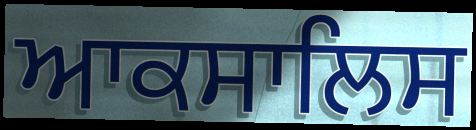
ਆਕਸਾਲਿਸ